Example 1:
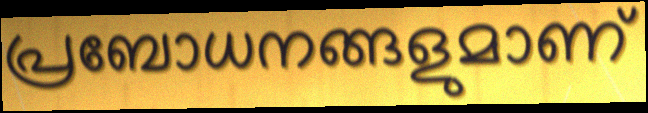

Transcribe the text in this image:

പ്രബോധനങ്ങളുമാണ്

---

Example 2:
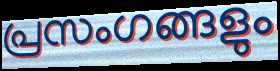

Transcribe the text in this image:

പ്രസംഗങ്ങളും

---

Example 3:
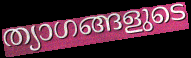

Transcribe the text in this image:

ത്യാഗങ്ങളുടെ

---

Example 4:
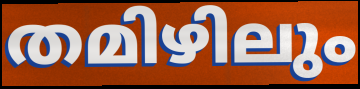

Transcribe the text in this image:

തമിഴിലും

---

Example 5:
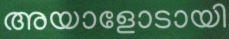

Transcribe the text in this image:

അയാളോടായി